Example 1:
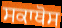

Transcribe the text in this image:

ਸਕਾਥੋਸ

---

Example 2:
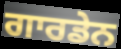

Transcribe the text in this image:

ਗਾਰਡੇਨ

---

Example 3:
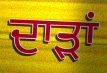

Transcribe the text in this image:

ਦਾੜਾਂ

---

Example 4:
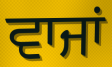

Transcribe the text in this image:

ਵਾਜਾਂ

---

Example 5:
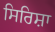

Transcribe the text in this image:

ਸਿਰਿਸ਼ਾ